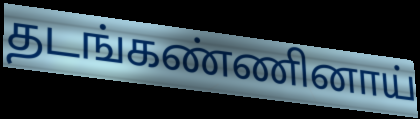
தடங்கண்ணினாய்